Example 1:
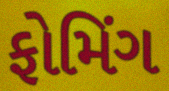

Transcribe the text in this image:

ફોમિંગ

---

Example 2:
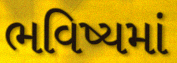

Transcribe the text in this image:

ભવિષ્યમાં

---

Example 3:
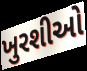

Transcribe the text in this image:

ખુરશીઓ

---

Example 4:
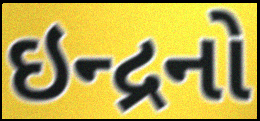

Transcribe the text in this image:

ઇન્દ્રનો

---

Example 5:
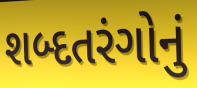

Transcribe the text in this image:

શબ્દતરંગોનું